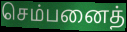
செம்பனைத்